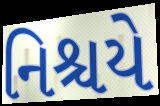
નિશ્ચયે